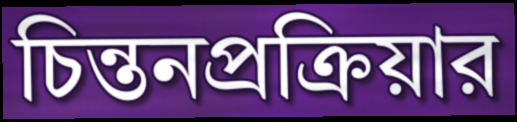
চিন্তনপ্রক্রিয়ার